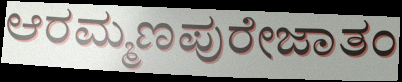
ಆರಮ್ಮಣಪುರೇಜಾತಂ